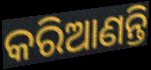
କରିଆଣନ୍ତି